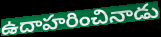
ఉదాహరించినాడు